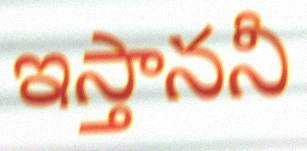
ఇస్తాననీ